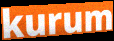
kurum